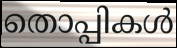
തൊപ്പികൾ